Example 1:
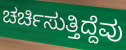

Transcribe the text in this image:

ಚರ್ಚಿಸುತ್ತಿದ್ದೆವು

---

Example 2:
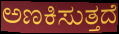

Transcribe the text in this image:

ಅಣಕಿಸುತ್ತದೆ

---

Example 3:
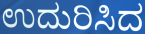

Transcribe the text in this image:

ಉದುರಿಸಿದ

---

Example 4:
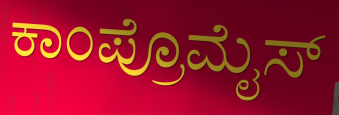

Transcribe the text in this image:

ಕಾಂಪ್ರೊಮೈಸ್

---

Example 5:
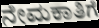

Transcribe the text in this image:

ನೇಮಕಾತಿಗೆ